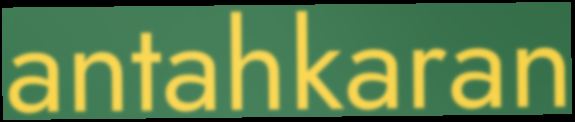
antahkaran